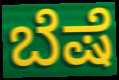
ಬೆಷೆ